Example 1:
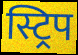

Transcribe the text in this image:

स्ट्रिप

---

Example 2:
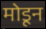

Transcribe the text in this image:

मोडून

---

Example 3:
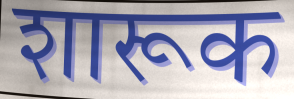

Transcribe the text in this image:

शारूक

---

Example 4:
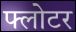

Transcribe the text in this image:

फ्लोटर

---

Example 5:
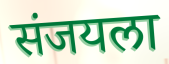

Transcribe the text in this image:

संजयला